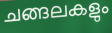
ചങ്ങലകളും